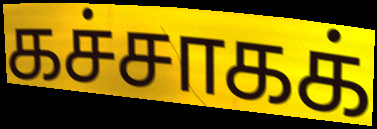
கச்சாகக்